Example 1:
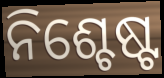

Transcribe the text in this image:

ନିଶ୍ଚେଷ୍ଟ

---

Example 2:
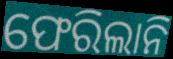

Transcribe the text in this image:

ଫେରିଲାନି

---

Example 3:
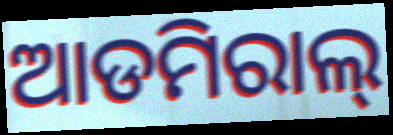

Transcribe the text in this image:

ଆଡମିରାଲ୍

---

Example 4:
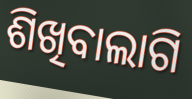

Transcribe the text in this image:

ଶିଖିବାଲାଗି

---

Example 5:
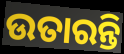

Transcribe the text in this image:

ଉତାରନ୍ତି